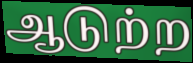
ஆடுற்ற